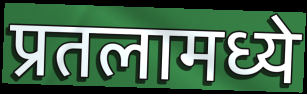
प्रतलामध्ये